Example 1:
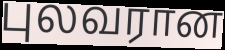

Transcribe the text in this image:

புலவரான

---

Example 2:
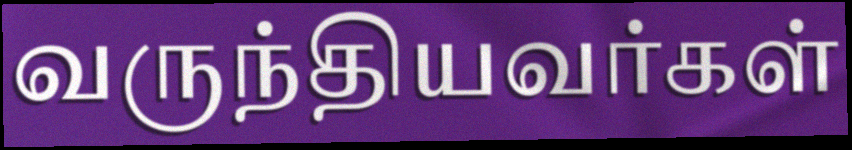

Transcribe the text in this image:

வருந்தியவர்கள்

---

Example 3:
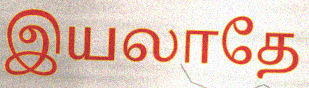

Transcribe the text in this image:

இயலாதே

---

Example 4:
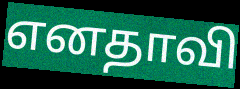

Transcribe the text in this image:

எனதாவி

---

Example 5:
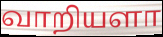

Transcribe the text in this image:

வாறியளா